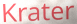
Krater